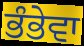
ਭੰਭੇਵਾ